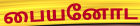
பையனோட